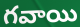
గవాయి